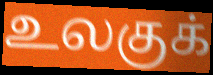
உலகுக்